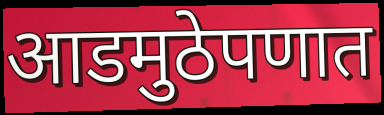
आडमुठेपणात